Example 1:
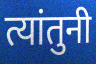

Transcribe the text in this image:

त्यांतुनी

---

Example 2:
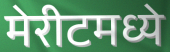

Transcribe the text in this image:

मेरीटमध्ये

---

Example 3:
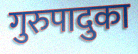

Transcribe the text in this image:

गुरुपादुका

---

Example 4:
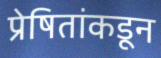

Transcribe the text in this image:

प्रेषितांकडून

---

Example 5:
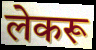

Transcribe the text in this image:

लेकरू